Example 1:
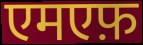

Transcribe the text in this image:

एमएफ़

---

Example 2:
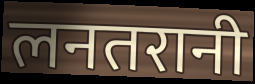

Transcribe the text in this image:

लनतरानी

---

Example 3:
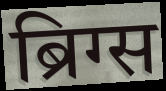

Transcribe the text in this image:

ब्रिग्स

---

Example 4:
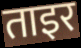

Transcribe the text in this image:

ताइर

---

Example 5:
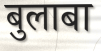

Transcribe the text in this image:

बुलाबा